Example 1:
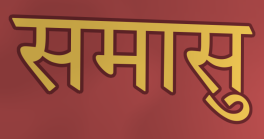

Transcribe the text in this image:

समासु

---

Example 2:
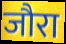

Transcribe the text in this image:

जौरा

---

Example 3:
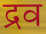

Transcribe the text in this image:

द्रव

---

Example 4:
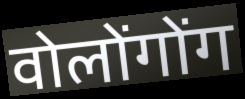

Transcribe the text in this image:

वोलोंगोंग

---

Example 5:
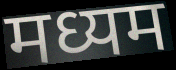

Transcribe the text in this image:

मध्यम